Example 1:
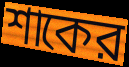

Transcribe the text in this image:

শাকের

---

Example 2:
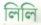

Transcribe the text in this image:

লিলি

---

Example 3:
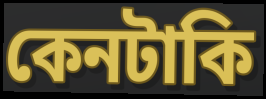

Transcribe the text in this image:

কেনটাকি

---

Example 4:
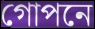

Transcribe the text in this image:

গোপনে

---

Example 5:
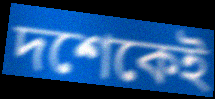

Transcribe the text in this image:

দশেকেই